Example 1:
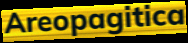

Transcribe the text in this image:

Areopagitica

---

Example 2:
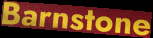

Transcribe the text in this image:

Barnstone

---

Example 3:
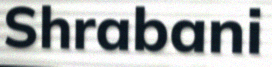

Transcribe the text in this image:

Shrabani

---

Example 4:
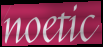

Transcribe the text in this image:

noetic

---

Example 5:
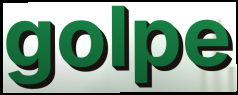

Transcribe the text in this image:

golpe